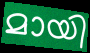
മായി